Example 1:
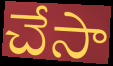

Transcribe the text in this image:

చేసా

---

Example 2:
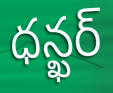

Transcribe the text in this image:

ధన్ఖర్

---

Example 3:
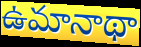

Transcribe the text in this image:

ఉమానాథా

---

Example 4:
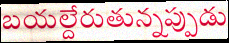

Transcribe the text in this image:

బయల్దేరుతున్నప్పుడు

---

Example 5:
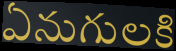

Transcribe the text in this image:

ఏనుగులకి